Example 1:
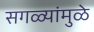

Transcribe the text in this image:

सगळ्यांमुळे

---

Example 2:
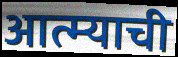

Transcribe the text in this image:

आत्म्याची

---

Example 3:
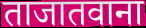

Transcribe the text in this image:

ताजातवाना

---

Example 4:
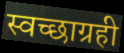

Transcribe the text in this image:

स्वच्छाग्रही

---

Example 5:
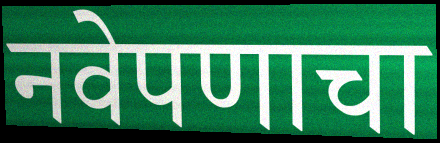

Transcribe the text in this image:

नवेपणाचा